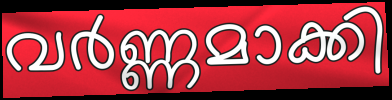
വർണ്ണമാക്കി